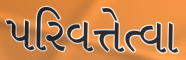
પરિવત્તેત્વા